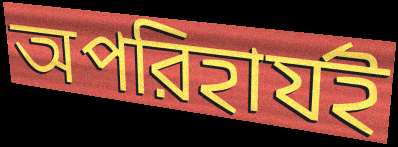
অপরিহার্যই